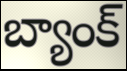
బ్యాంక్